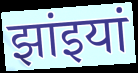
झांइयां